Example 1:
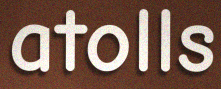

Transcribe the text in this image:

atolls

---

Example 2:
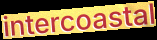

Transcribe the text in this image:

intercoastal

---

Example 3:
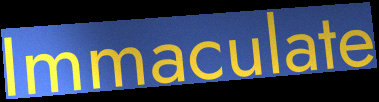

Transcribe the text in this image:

Immaculate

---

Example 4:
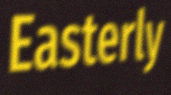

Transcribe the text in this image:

Easterly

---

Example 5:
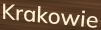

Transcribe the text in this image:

Krakowie